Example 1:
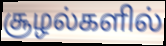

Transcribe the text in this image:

சூழல்களில்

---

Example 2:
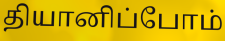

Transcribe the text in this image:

தியானிப்போம்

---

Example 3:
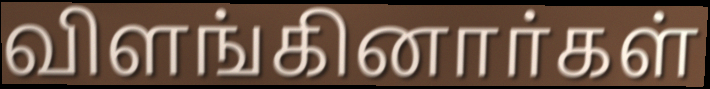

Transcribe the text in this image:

விளங்கினார்கள்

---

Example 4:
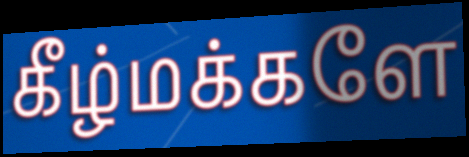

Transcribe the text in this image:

கீழ்மக்களே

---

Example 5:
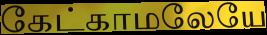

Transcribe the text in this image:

கேட்காமலேயே